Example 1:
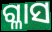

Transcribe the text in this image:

ଗ୍ଳାସ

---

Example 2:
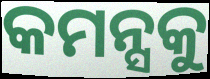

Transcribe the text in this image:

କମନ୍ସକୁ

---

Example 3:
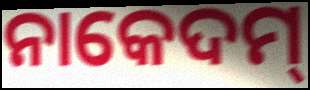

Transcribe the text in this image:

ନାକେଦମ୍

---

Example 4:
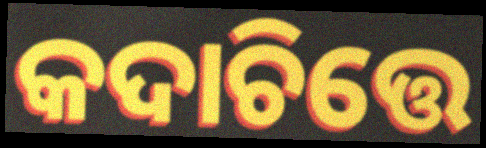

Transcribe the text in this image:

କଦାଚିତ୍ତେ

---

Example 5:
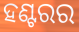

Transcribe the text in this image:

ହଣ୍ଟରର